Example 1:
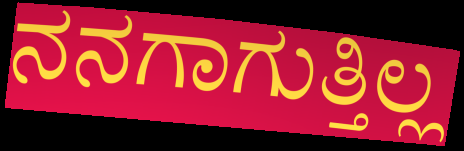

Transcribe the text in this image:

ನನಗಾಗುತ್ತಿಲ್ಲ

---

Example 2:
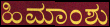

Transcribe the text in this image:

ಹಿಮಾಂಶು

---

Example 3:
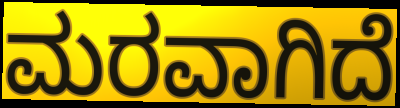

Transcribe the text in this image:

ಮರವಾಗಿದೆ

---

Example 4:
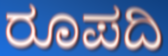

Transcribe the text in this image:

ರೂಪದಿ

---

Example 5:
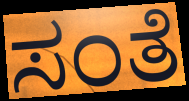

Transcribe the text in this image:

ಸಂತೆ